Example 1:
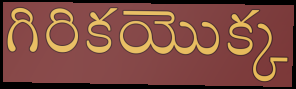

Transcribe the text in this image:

గిరికయొక్క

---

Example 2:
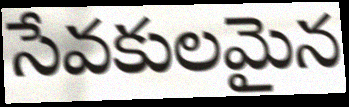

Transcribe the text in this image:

సేవకులమైన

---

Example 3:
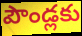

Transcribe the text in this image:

పౌండ్లకు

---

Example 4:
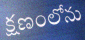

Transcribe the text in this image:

క్షణంలోను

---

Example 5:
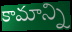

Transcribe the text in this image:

కామాన్ని